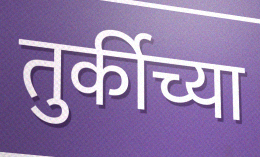
तुर्कीच्या